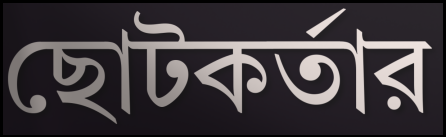
ছোটকর্তার